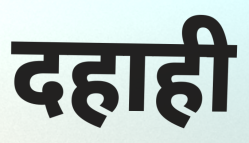
दहाही